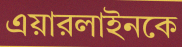
এয়ারলাইনকে